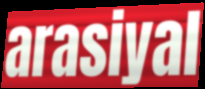
arasiyal